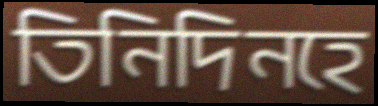
তিনিদিনহে